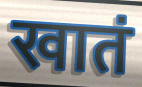
खातं